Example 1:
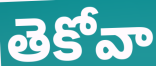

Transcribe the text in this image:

తెకోవా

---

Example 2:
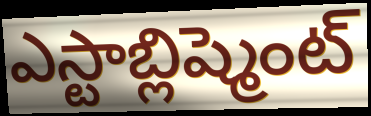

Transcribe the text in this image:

ఎస్టాబ్లిష్మెంట్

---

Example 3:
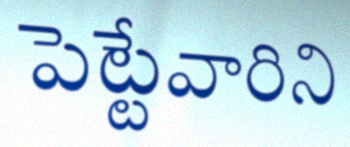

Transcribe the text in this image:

పెట్టేవారిని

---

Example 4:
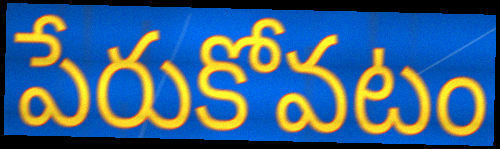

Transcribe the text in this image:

పేరుకోవటం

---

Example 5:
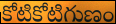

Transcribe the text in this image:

కోటికోటిగుణం